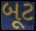
બૂટ